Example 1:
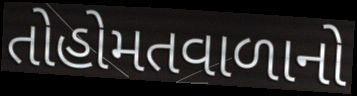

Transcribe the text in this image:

તોહોમતવાળાનો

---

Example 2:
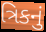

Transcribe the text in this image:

ત્રિકનું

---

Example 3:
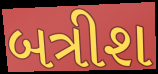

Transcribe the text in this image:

બત્રીશ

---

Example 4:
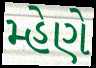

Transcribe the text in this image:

મ્હેણે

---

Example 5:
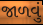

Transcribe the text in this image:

જાળવું